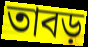
তাবড়